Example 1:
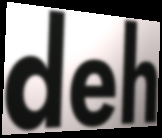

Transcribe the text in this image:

deh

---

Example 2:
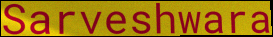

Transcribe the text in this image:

Sarveshwara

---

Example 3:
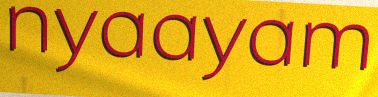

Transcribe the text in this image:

nyaayam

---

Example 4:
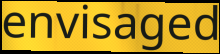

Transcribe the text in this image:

envisaged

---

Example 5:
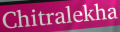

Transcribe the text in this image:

Chitralekha